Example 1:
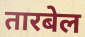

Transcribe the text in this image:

तारबेल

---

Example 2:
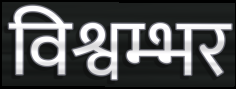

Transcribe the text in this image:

विश्वम्भर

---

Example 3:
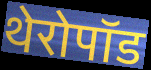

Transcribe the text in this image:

थेरोपॉड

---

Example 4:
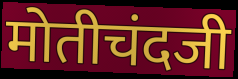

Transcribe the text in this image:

मोतीचंदजी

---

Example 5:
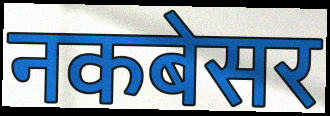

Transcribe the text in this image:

नकबेसर